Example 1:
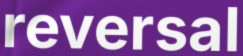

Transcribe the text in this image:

reversal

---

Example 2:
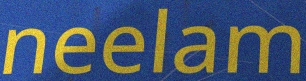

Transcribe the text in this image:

neelam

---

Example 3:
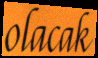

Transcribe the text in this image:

olacak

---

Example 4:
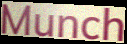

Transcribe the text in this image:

Munch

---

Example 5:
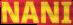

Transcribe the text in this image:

NANI